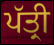
ਪੱਤ੍ਰੀ